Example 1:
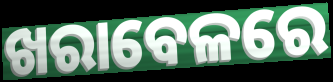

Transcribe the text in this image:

ଖରାବେଳରେ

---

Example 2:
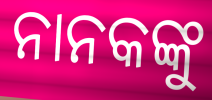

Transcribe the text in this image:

ନାନକଙ୍କୁ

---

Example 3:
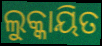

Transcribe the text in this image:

ଲୁକ୍କାୟିତ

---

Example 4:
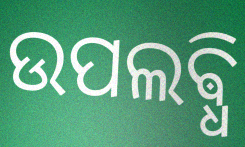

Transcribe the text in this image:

ଉପଲଵ୍ଧି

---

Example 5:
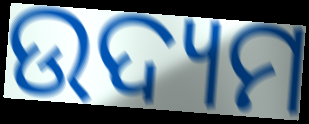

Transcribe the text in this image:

ଉଦ୍ୟମ